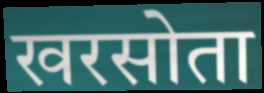
खरसोता